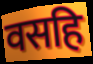
वसहि